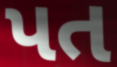
પત